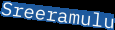
Sreeramulu